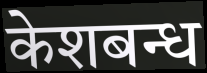
केशबन्ध